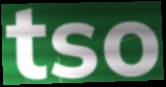
tso